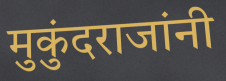
मुकुंदराजांनी